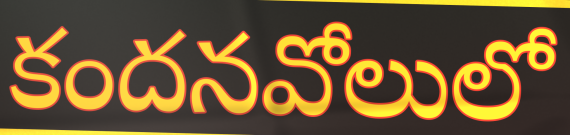
కందనవోలులో